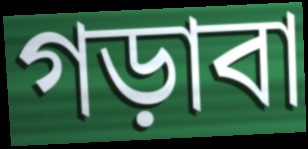
গড়াবা